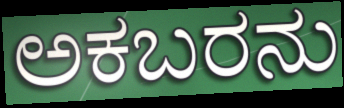
ಅಕಬರನು